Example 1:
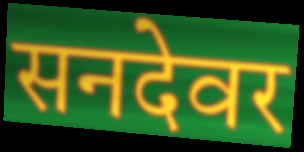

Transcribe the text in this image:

सनदेवर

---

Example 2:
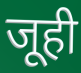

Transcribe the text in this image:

जूही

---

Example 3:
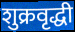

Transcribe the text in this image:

शुक्रवृद्धी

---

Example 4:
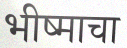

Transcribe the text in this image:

भीष्माचा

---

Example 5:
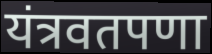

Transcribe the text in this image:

यंत्रवतपणा